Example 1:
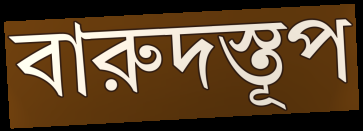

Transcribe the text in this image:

বারুদস্তূপ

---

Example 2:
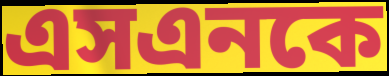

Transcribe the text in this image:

এসএনকে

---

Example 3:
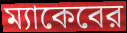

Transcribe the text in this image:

ম্যাকেবের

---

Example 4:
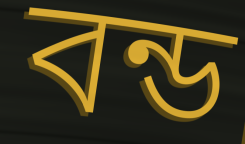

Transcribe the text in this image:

বন্ড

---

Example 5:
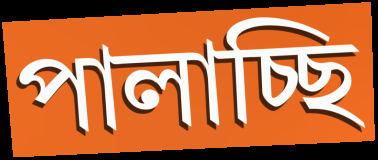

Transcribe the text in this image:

পালাচ্ছি